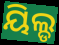
ୟିଲ୍ଡ